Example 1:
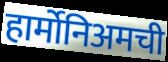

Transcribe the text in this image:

हार्मोनिअमची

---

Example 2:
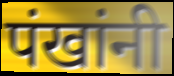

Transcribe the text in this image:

पंखांनी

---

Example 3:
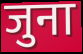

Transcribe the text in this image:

जुना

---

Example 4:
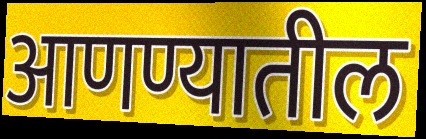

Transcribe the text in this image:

आणण्यातील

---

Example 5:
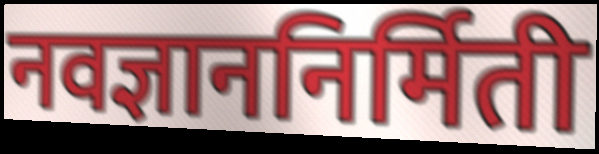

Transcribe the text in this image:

नवज्ञाननिर्मिती